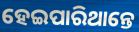
ହେଇପାରିଥାନ୍ତେ